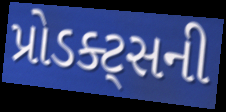
પ્રોડક્ટ્સની